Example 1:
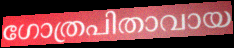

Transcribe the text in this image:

ഗോത്രപിതാവായ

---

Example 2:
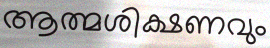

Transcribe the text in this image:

ആത്മശിക്ഷണവും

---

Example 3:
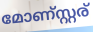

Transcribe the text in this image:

മോണ്സ്റ്റര്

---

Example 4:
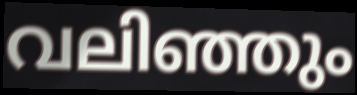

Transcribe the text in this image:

വലിഞ്ഞും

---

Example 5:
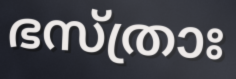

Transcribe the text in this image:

ഭസ്ത്രാഃ